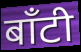
बाँटी